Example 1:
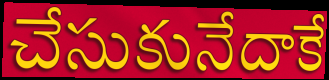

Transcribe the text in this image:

చేసుకునేదాకే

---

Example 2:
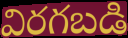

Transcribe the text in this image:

విరగబడి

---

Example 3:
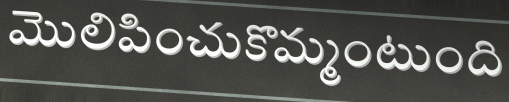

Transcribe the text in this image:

మొలిపించుకొమ్మంటుంది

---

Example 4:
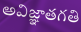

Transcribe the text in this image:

అవిజ్ఞాతగతి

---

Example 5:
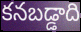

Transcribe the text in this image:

కనబడ్డాది